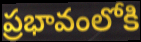
ప్రభావంలోకి